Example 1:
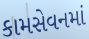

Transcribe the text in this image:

કામસેવનમાં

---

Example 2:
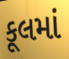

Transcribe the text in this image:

કૂલમાં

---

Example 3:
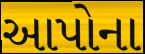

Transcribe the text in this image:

આપોના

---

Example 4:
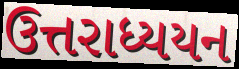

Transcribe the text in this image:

ઉત્તરાધ્યયન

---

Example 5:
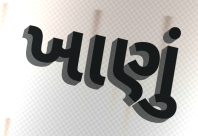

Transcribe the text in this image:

ખાણું